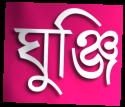
ঘুঞ্জি